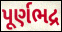
પૂર્ણભદ્ર